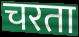
चरता